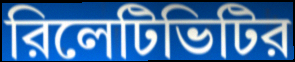
রিলেটিভিটির